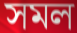
সমল